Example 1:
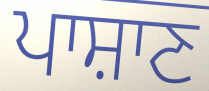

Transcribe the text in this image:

ਪਾਸ਼ਾਣ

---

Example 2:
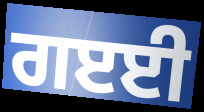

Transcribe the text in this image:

ਗੲਈ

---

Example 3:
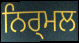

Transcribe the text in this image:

ਨਿਰ੍ਮਲ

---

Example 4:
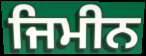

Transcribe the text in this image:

ਜਿਮੀਨ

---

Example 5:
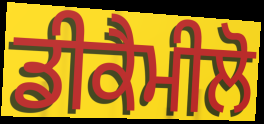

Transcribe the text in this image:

ਡੀਕੈਮੀਲੋ